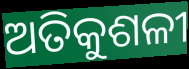
ଅତିକୁଶଳୀ